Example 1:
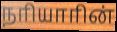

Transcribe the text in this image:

நரியாரின்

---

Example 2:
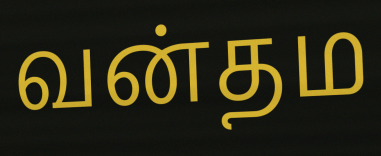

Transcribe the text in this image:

வன்தம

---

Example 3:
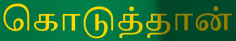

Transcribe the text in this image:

கொடுத்தான்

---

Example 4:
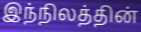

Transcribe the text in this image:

இந்நிலத்தின்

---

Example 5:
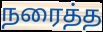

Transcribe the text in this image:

நரைத்த